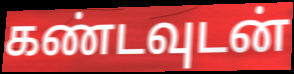
கண்டவுடன்